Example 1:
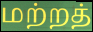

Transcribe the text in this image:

மற்றத்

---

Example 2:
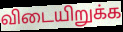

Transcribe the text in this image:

விடையிறுக்க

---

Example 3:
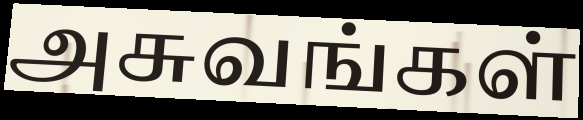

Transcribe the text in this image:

அசுவங்கள்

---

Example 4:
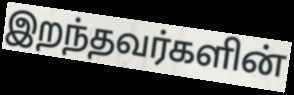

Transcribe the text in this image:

இறந்தவர்களின்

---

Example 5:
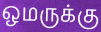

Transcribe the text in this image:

ஒமருக்கு